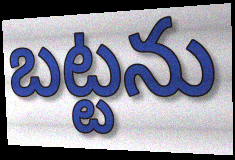
బట్టను